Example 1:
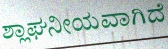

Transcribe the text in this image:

ಶ್ಲಾಘನೀಯವಾಗಿದೆ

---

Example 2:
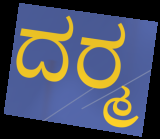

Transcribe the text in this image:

ದರ‍್ಮ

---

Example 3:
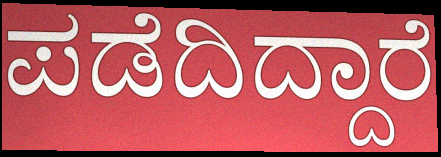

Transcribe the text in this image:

ಪಡೆದಿದ್ದಾರೆ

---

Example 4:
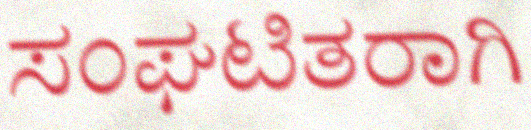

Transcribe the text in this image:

ಸಂಘಟಿತರಾಗಿ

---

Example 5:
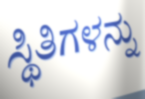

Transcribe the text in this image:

ಸ್ಥಿತಿಗಳನ್ನು